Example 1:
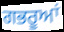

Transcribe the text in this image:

ਗਭਰੂਆਂ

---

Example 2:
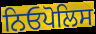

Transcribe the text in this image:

ਨਿਓਪੋਲਿਸ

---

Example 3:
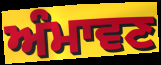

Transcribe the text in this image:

ਅੰਮਾਵਣ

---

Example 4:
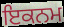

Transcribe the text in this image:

ਇਕਨਮ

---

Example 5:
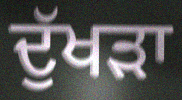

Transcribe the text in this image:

ਦੁੱਖਡ਼ਾ